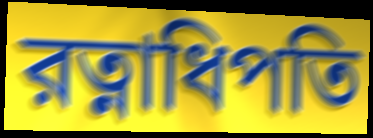
রত্নাধিপতি